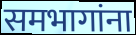
समभागांना